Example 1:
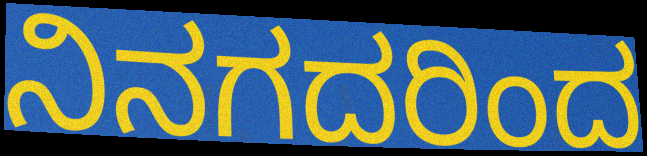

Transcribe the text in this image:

ನಿನಗದರಿಂದ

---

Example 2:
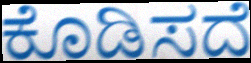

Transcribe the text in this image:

ಕೊಡಿಸದೆ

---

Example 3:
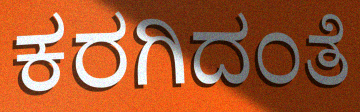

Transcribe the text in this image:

ಕರಗಿದಂತೆ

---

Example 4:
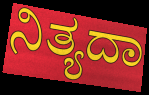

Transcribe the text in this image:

ನಿತ್ಯದಾ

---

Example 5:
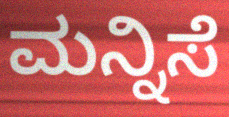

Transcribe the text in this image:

ಮನ್ನಿಸೆ